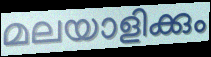
മലയാളിക്കും